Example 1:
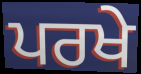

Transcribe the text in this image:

ਪਰਖੇ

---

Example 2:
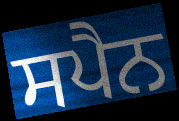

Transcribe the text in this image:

ਸਪੈਨ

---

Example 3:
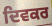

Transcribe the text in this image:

ਦਿਵਕਰ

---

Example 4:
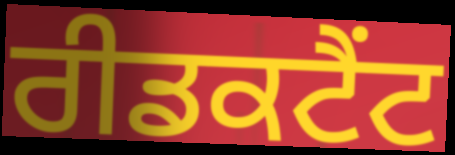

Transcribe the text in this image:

ਰੀਡਕਟੈਂਟ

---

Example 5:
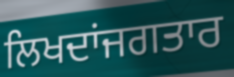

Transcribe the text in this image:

ਲਿਖਦਾਂਜਗਤਾਰ